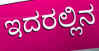
ಇದರಲ್ಲಿನ